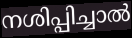
നശിപ്പിച്ചാൽ